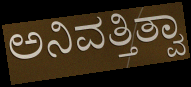
ಅನಿವತ್ತಿತ್ವಾ